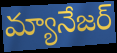
మ్యానేజర్